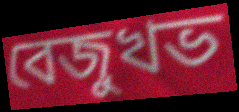
বেজুখভ